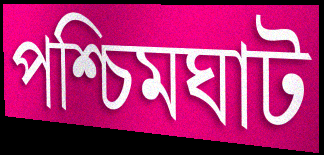
পশ্চিমঘাট